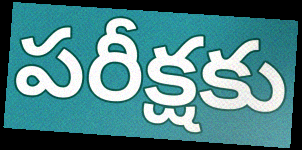
పరీక్షకు